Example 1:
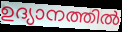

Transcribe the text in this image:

ഉദ്യാനത്തിൽ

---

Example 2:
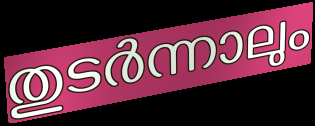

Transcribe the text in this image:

തുടർന്നാലും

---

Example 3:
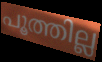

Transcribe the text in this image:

പൂത്തില്ല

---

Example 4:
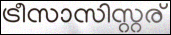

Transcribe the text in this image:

ട്രീസാസിസ്റ്റര്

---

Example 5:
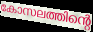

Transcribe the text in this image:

കോസലത്തിന്റെ